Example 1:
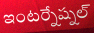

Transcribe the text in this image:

ఇంటర్నేష్నల్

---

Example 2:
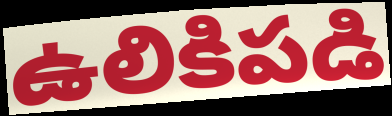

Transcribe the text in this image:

ఉలికిపడి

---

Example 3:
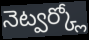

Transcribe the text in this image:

నెట్వర్క్లో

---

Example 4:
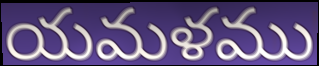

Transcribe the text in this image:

యమళము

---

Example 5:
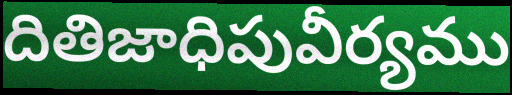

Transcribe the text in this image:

దితిజాధిపువీర్యము